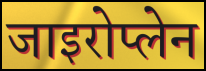
जाइरोप्लेन